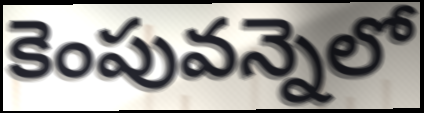
కెంపువన్నెలో